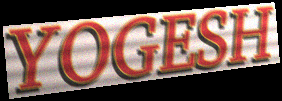
YOGESH